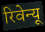
रिवेन्यू